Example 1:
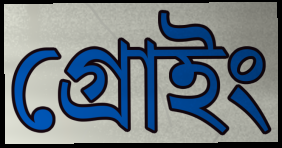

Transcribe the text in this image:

গ্রোইং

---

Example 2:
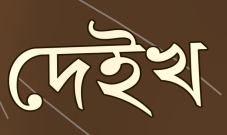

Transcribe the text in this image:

দেইখ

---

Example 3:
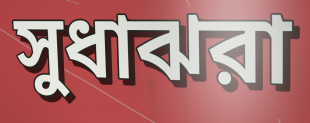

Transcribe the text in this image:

সুধাঝরা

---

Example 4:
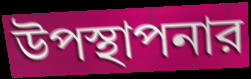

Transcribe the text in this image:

উপস্থাপনার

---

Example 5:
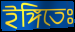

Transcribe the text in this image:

ইঙ্গিতেঃ